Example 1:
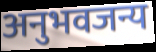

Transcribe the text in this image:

अनुभवजन्य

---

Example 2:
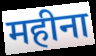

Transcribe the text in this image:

महीना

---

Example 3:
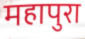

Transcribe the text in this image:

महापुरा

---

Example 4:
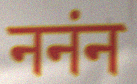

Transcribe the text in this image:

ननंन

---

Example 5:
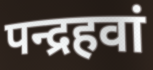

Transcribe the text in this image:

पन्द्रहवां